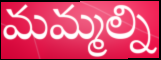
మమ్మల్ని